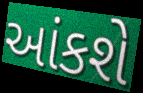
આંકશે